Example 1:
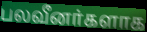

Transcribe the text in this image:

பலவீனர்களாக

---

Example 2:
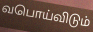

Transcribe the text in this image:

வபொய்விடும்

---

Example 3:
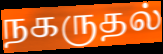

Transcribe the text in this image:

நகருதல்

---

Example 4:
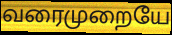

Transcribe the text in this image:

வரைமுறையே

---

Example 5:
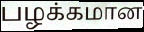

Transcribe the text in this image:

பழக்கமான